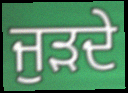
ਜੁੜਦੇ